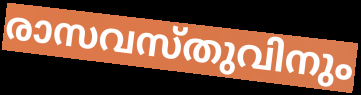
രാസവസ്തുവിനും